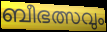
ബീഭത്സവും